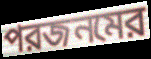
পরজনমের